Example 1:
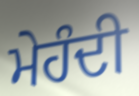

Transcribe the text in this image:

ਮੇਹੰਦੀ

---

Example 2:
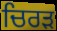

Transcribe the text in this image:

ਚਿਰੜ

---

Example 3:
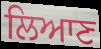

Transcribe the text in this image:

ਲਿਆਣ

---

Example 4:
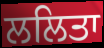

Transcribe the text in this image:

ਲਲਿਤਾ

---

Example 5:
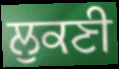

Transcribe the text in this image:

ਲੁਕਣੀ